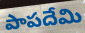
పాపదేమి